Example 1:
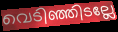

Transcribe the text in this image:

വെടിഞ്ഞിടല്ലേ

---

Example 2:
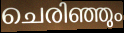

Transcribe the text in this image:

ചെരിഞ്ഞും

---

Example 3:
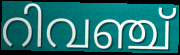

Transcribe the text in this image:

റിവഞ്ച്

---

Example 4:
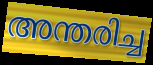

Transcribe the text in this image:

അന്തരിച്ച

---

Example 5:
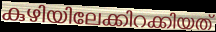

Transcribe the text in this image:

കുഴിയിലേക്കിറക്കിയത്